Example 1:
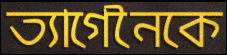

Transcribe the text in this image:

ত্যাগেনৈকে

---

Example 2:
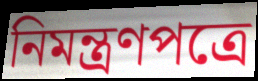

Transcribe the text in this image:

নিমন্ত্রণপত্রে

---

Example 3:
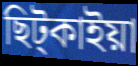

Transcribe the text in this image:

ছিট্কাইয়া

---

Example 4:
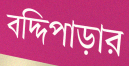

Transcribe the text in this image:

বদ্দিপাড়ার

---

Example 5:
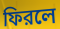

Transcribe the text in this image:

ফিরলে